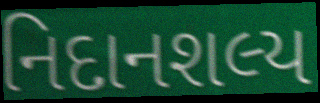
નિદાનશલ્ય